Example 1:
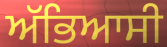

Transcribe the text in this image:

ਅੱਭਿਆਸੀ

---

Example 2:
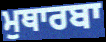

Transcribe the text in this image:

ਮੁਥਾਰਬਾ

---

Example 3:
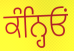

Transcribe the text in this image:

ਕੰਨ੍ਹਿਓਂ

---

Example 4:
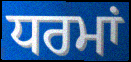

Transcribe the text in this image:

ਧਰਮਾਂ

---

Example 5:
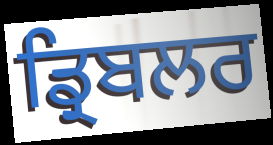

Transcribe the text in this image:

ਡ੍ਰਿਬਲਰ